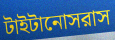
টাইটানোসরাস